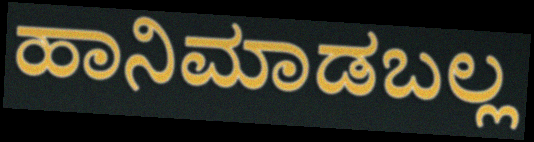
ಹಾನಿಮಾಡಬಲ್ಲ